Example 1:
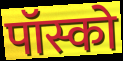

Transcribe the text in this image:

पॉस्‍को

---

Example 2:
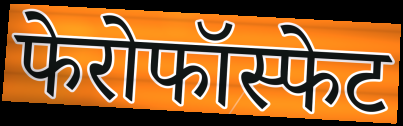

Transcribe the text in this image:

फेरोफॉस्फेट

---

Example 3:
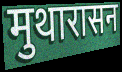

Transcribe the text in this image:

मुथारासन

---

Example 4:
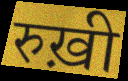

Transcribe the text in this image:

रुख़ी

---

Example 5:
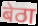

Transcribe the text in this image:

बेठा